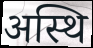
अस्थि